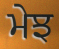
ਮੇਝ